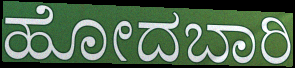
ಹೋದಬಾರಿ